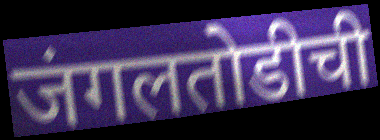
जंगलतोडीची